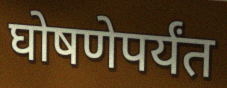
घोषणेपर्यंत